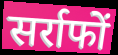
सर्राफों